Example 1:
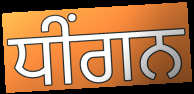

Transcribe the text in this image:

ਧੀਂਗਨ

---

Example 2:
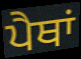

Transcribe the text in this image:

ਪੈਥਾਂ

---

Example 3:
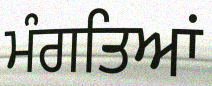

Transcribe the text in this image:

ਮੰਗਤਿਆਂ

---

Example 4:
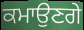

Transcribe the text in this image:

ਕਮਾਉਣਗੇ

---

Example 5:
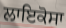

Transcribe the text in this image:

ਲਾਇਕੋਸਾ